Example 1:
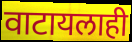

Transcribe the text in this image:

वाटायलाही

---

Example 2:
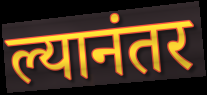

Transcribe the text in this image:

ल्यानंतर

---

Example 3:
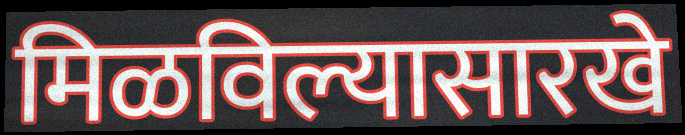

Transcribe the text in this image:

मिळविल्यासारखे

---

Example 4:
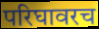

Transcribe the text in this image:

परिघावरच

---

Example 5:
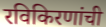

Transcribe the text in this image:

रविकिरणांची